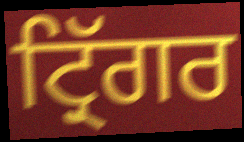
ਟ੍ਰਿੱਗਰ